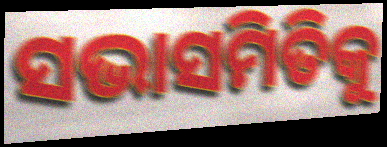
ସଭାସମିତିକୁ